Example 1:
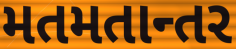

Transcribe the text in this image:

મતમતાન્તર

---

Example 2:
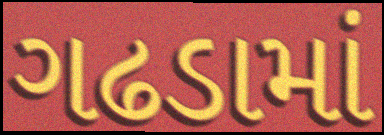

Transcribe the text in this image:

ગઢડામાં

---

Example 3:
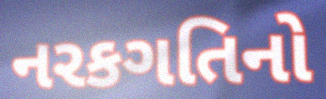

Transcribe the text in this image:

નરકગતિનો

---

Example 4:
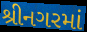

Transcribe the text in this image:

શ્રીનગરમાં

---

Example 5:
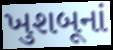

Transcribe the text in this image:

ખુશબૂનાં